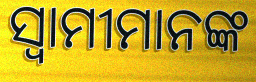
ସ୍ବାମୀମାନଙ୍କ